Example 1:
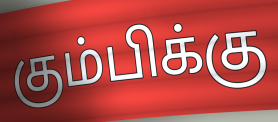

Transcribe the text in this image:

கும்பிக்கு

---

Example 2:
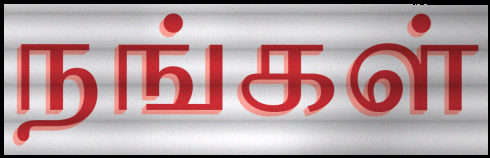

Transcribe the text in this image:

நங்கள்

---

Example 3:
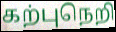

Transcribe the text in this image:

கற்புநெறி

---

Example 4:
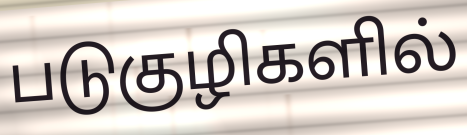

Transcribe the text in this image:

படுகுழிகளில்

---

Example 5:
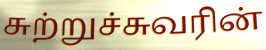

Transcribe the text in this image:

சுற்றுச்சுவரின்